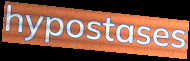
hypostases